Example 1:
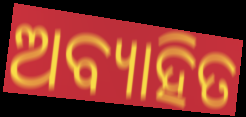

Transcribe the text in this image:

ଅବ୍ୟାହିତ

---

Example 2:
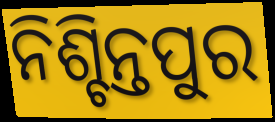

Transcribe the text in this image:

ନିଶ୍ଚିନ୍ତପୁର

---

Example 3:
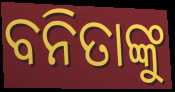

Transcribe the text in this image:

ବନିତାଙ୍କୁ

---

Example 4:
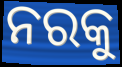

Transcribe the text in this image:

ନରକୁ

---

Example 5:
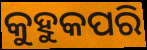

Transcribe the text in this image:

କୁହୁକପରି